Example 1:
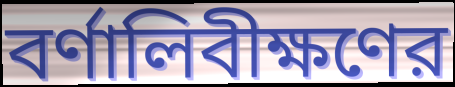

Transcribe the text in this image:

বর্ণালিবীক্ষণের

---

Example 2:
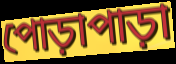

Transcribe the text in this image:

পোড়াপাড়া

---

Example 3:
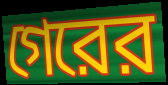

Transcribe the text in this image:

গেরের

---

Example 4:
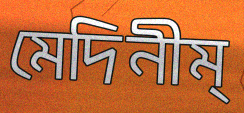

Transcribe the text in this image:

মেদিনীম্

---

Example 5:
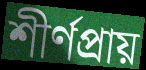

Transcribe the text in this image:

শীর্ণপ্রায়